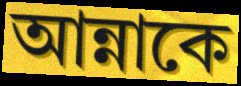
আন্নাকে